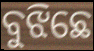
ବୁଝିଛେ